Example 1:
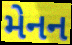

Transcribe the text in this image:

મેનન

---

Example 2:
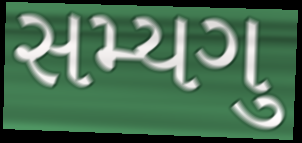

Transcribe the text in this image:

સમ્યગુ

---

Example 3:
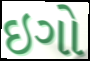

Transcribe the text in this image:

ઇગો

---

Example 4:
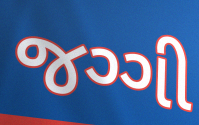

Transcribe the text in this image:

જગ્ગી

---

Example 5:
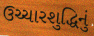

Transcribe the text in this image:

ઉચ્ચારશુદ્ધિનું